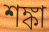
শঙ্কা